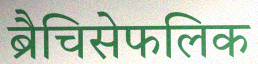
ब्रैचिसेफलिक